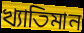
খ্যাতিমান